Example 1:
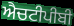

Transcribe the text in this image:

ਐਚਟੀਪੀਬੀ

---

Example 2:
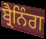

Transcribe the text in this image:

ਬ੍ਰੈਨਿੰਗ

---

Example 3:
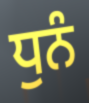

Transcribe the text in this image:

ਧੁਨੰ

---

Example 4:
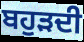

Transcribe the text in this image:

ਬਹੁੜਦੀ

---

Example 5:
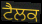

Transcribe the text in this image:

ਟੈਲਕ